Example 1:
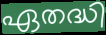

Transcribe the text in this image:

ഏതദ്ധി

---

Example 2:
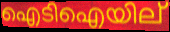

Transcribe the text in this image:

ഐടിഐയില്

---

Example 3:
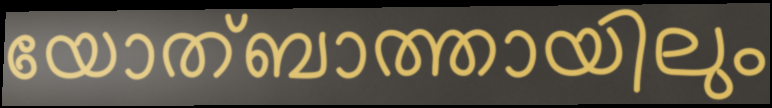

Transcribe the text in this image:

യോത്ബാത്തായിലും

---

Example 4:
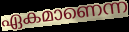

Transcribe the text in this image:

ഏകമാണെന്ന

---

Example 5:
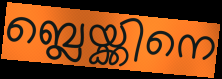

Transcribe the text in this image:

ബ്ലെയ്ക്കിനെ